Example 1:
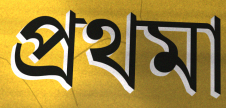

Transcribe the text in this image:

প্ৰথমা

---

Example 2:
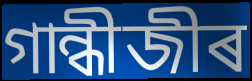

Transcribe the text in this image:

গান্ধীজীৰ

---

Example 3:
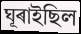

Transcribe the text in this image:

ঘূৰাইছিল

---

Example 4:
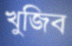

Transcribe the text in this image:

খুজিব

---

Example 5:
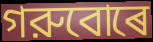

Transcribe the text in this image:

গৰুবোৰে